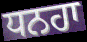
ਧਨਹਾ